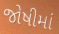
જોષીમાં